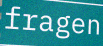
fragen